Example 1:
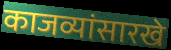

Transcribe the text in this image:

काजव्यांसारखे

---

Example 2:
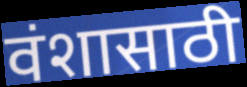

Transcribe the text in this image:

वंशासाठी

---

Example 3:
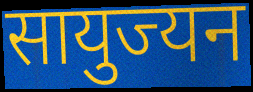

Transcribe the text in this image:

सायुज्यन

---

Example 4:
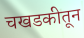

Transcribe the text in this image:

चखडकीतून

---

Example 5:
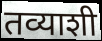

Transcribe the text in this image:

तव्याशी